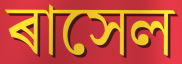
ৰাসেল